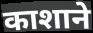
काशाने